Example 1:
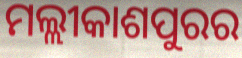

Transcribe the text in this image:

ମଲ୍ଲୀକାଶପୁରର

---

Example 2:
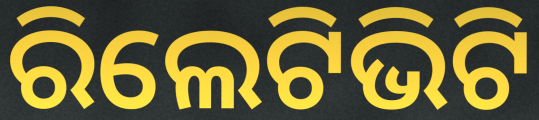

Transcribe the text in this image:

ରିଲେଟିଭିଟି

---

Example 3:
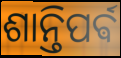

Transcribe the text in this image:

ଶାନ୍ତିପର୍ଵ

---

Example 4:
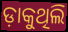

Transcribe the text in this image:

ଡ଼ାକୁଥିଲି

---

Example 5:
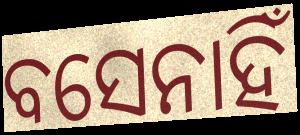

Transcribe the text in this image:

ବସେନାହିଁ